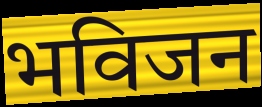
भविजन